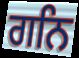
ਗਨਿ